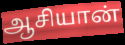
ஆசியான்